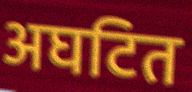
अघटित